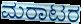
ಮರಾಟರ